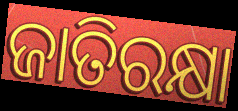
ଜାତିରକ୍ଷା